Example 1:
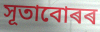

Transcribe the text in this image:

সূতাবোৰৰ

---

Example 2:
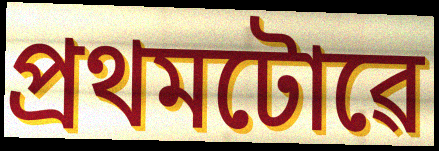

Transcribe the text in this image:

প্ৰথমটোৱে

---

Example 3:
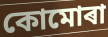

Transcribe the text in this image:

কোমোৰা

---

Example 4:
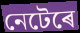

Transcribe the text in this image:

নেটেৰে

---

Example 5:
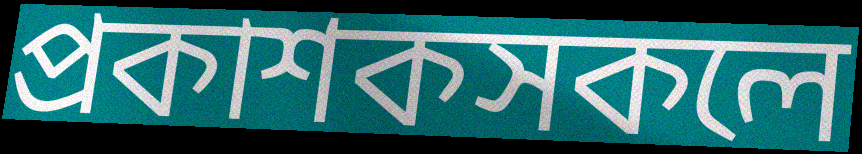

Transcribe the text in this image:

প্ৰকাশকসকলে